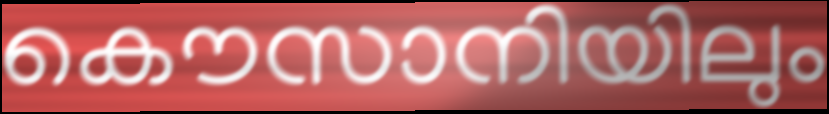
കൌസാനിയിലും